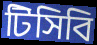
টিসিবি